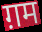
ग़म